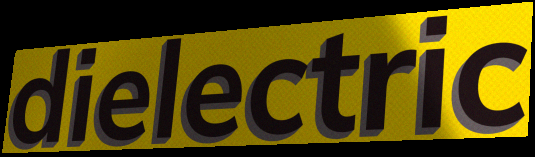
dielectric